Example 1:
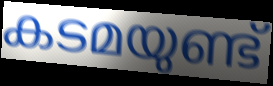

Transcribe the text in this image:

കടമയുണ്ട്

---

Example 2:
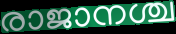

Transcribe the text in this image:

രാജാനശ്ച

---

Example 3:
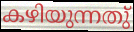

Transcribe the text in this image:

കഴിയുന്നതു്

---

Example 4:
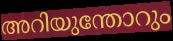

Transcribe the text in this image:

അറിയുന്തോറും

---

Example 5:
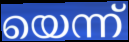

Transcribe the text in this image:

യെന്ന്